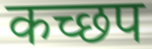
कच्छप